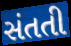
સંતતી